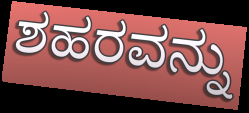
ಶಹರವನ್ನು